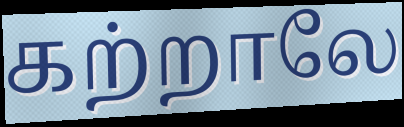
கற்றாலே